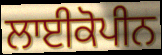
ਲਾਈਕੋਪੀਨ